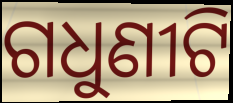
ଗଧୁଣୀଟି